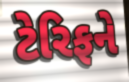
ટેરિફને